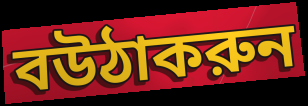
বউঠাকরুন